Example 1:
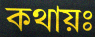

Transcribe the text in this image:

কথায়ঃ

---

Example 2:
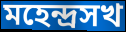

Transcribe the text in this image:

মহেন্দ্রসখ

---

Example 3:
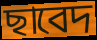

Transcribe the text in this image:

ছাবেদ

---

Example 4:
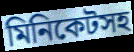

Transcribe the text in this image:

মিনিকেটসহ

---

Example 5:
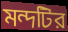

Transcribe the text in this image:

মন্দটির